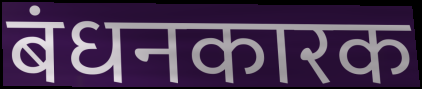
बंधनकारक